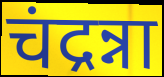
चंद्रन्ना